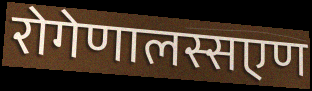
रोगेणालस्सएण